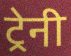
ट्रेनी